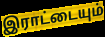
இராட்டையும்